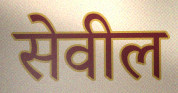
सेवील